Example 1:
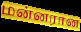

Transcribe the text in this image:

மன்னரான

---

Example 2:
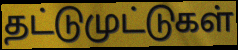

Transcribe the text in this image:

தட்டுமுட்டுகள்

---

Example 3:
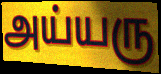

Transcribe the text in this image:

அய்யரு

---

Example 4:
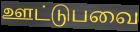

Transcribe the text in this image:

ஊட்டுபவை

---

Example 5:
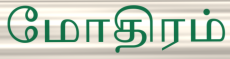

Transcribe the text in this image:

மோதிரம்